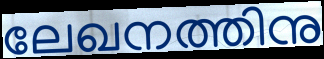
ലേഖനത്തിനു